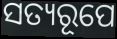
ସତ୍ୟରୂପେ